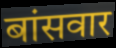
बांसवार